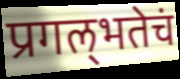
प्रगल्भतेचं